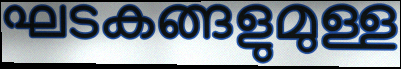
ഘടകങ്ങളുമുള്ള